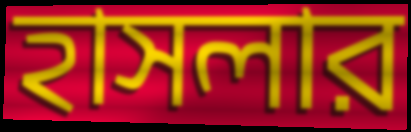
হাসলার